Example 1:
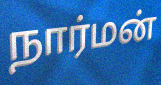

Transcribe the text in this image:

நார்மன்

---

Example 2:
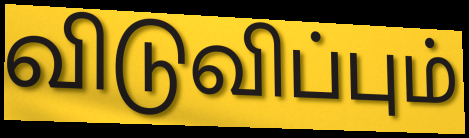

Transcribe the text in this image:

விடுவிப்பும்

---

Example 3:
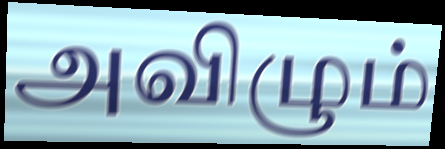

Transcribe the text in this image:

அவிழும்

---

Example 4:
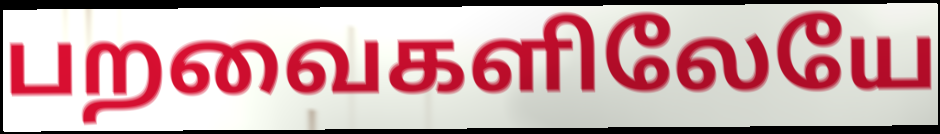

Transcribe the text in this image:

பறவைகளிலேயே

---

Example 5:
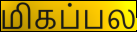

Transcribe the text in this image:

மிகப்பல